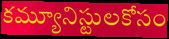
కమ్యూనిస్టులకోసం